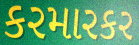
કરમારકર